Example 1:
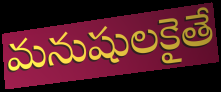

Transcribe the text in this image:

మనుషులకైతే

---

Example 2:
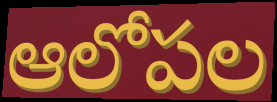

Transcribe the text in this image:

ఆలోపల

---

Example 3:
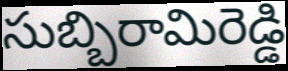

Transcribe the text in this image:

సుబ్బిరామిరెడ్డి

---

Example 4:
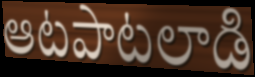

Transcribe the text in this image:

ఆటపాటలాడి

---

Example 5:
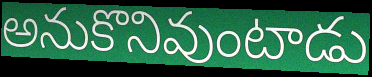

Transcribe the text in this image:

అనుకొనివుంటాడు